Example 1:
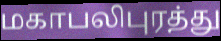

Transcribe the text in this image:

மகாபலிபுரத்து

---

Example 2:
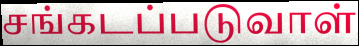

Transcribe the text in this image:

சங்கடப்படுவாள்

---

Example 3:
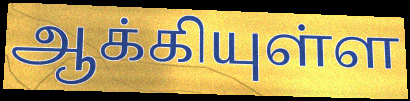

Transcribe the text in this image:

ஆக்கியுள்ள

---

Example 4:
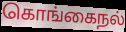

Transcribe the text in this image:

கொங்கைநல்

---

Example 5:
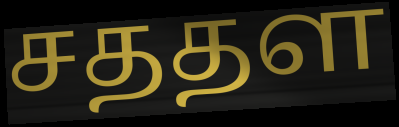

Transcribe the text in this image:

சததள